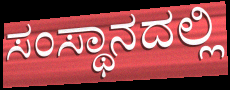
ಸಂಸ್ಥಾನದಲ್ಲಿ